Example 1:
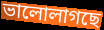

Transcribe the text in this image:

ভালোলাগছে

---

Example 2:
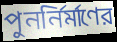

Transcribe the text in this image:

পুনর্নির্মাণের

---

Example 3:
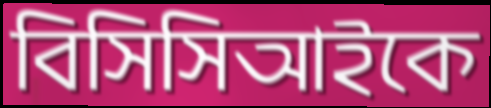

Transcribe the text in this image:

বিসিসিআইকে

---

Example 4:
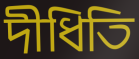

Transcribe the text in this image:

দীধিতি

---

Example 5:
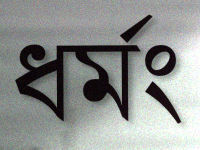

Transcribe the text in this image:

ধর্মং